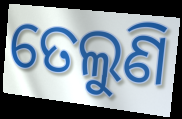
ତେଲୁଣି